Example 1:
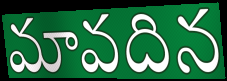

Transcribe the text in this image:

మావదిన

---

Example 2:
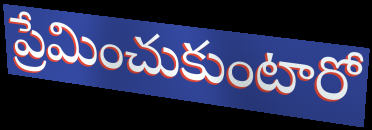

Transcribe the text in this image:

ప్రేమించుకుంటారో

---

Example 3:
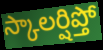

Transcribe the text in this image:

స్కాలర్షిప్తో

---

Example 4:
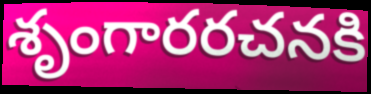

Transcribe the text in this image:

శృంగారరచనకి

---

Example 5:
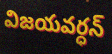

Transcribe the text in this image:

విజయవర్ధన్